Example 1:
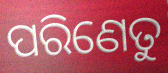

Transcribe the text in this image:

ପରିଣେତୁ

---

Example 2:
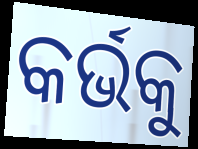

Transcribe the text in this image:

କର୍ଭକୁ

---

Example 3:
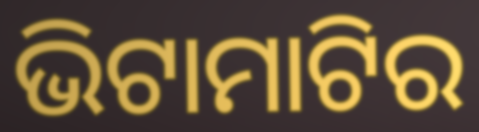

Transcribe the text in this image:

ଭିଟାମାଟିର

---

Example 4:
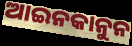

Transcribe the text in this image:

ଆଇନକାନୁନ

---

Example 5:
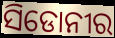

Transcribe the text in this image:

ସିଡୋନୀର